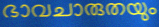
ഭാവചാരുതയും